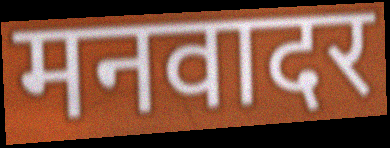
मनवादर